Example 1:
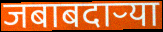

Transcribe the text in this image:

जबाबदाऱ्या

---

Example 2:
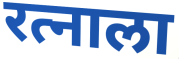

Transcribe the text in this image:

रत्नाला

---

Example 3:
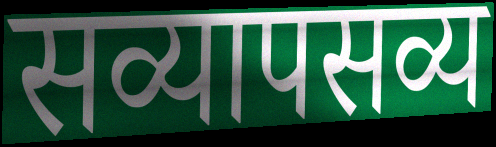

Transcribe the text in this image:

सव्यापसव्य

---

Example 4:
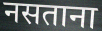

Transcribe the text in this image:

नसताना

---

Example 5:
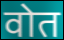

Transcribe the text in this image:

वोत